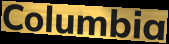
Columbia